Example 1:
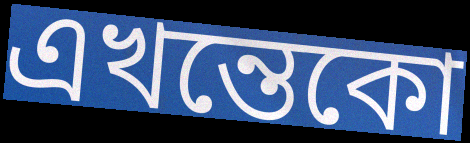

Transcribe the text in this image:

এখন্তেকো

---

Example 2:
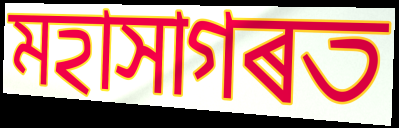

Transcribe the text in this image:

মহাসাগৰত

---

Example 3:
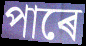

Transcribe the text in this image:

পাৰে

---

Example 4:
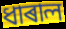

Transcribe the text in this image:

ধাৰাল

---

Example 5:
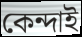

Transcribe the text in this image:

কেন্দাই